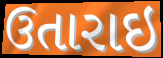
ઉતારાઇ